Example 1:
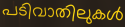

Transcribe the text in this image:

പടിവാതിലുകൾ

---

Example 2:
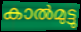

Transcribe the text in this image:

കാൽമുട്ടു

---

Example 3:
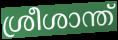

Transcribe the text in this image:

ശ്രീശാന്ത്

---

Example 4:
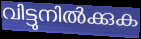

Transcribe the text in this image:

വിട്ടുനിൽക്കുക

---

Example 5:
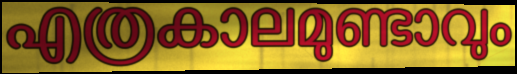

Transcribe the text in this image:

എത്രകാലമുണ്ടാവും